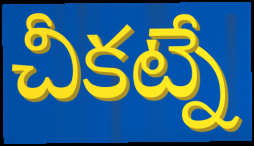
చీకట్నే